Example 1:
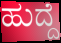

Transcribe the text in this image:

ಹುದ್ದೆ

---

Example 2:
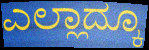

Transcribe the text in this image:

ಎಲ್ಲಾದ್ಕೂ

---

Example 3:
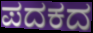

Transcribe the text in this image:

ಪದಕದ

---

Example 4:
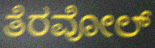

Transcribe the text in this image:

ತೆರವೋಲ್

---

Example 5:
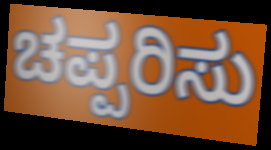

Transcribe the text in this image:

ಚಪ್ಪರಿಸು